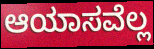
ಆಯಾಸವೆಲ್ಲ